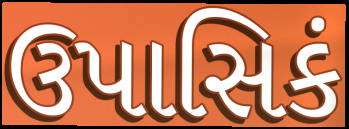
ઉપાસિકં